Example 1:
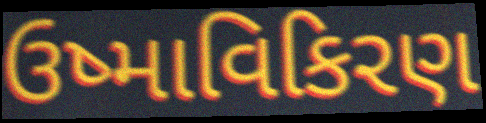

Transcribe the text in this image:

ઉષ્માવિકિરણ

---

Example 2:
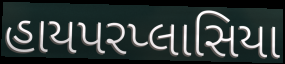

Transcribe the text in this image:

હાયપરપ્લાસિયા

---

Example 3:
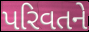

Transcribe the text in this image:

પરિવતને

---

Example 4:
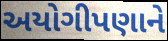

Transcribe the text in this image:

અયોગીપણાને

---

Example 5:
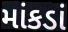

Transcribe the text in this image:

માંકડાં